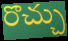
రొచ్చు